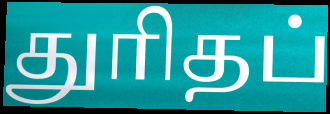
துரிதப்